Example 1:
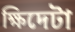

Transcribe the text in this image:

ক্ষিদেটা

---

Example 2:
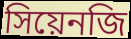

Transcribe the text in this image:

সিয়েনজি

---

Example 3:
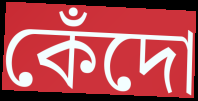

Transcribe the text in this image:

কেঁদো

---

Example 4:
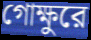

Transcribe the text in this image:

গোক্ষুরে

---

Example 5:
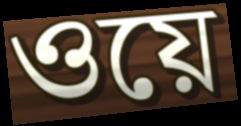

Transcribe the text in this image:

ওয়ে